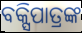
ବକ୍ସିପାତ୍ରଙ୍କ